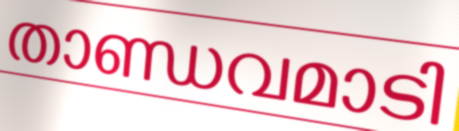
താണ്ഡവമാടി